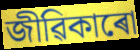
জীৱিকাৰো